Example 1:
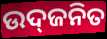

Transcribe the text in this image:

ଉଦ୍‌ଜନିତ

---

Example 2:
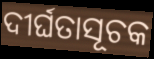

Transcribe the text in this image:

ଦୀର୍ଘତାସୂଚକ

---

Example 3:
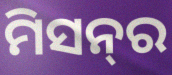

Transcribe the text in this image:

ମିସନ୍‌ର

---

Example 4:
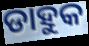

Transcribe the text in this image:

ଡାହୁକ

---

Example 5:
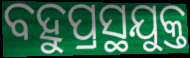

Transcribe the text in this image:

ବହୁପ୍ରସ୍ଥଯୁକ୍ତ